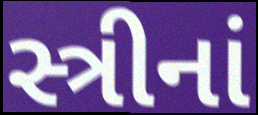
સ્ત્રીનાં